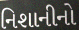
નિશાનીનો